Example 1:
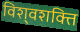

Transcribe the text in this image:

विश्वशक्ति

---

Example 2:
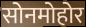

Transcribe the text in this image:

सोनमोहोर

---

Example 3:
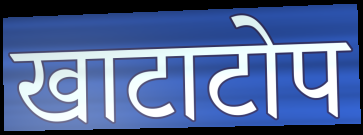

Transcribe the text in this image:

खाटाटोप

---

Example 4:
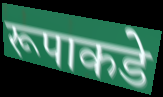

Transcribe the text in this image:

रूपाकडे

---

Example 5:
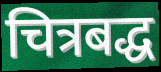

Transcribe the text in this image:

चित्रबद्ध